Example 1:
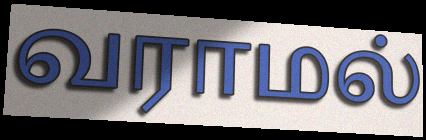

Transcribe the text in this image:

வராமல்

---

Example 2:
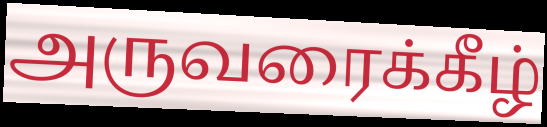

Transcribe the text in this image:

அருவரைக்கீழ்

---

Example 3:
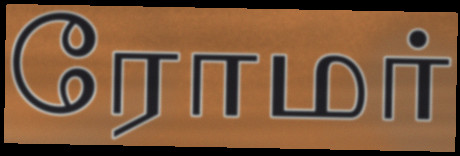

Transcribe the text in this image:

ரோமர்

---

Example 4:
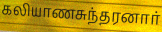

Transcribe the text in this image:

கலியாணசுந்தரனார்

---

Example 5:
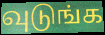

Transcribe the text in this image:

வுடுங்க